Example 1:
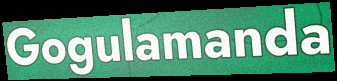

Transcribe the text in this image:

Gogulamanda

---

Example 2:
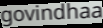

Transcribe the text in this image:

govindhaa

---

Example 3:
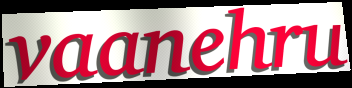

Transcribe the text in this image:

vaanehru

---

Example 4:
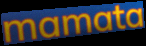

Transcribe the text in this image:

mamata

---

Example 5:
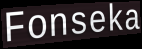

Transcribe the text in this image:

Fonseka